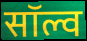
सॉल्व